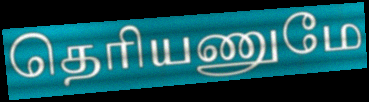
தெரியணுமே